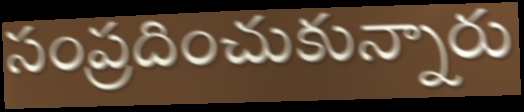
సంప్రదించుకున్నారు